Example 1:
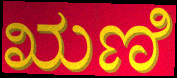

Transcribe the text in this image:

ಋಣಿ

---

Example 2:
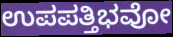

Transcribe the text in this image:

ಉಪಪತ್ತಿಭವೋ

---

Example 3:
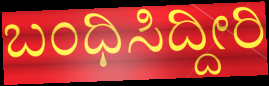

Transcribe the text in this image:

ಬಂಧಿಸಿದ್ದೀರಿ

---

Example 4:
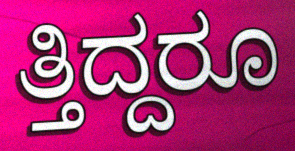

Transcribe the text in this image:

ತ್ತಿದ್ದರೂ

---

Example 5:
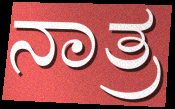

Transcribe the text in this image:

ನಾತ್ರ